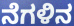
ನೆಗಳಿನ